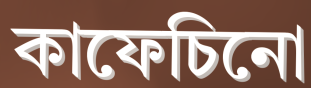
কাফেচিনো